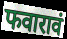
फवारावं